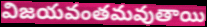
విజయవంతమవుతాయి